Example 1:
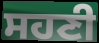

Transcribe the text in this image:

ਸਹਣੀ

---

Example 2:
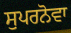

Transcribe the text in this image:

ਸੁਪਰਨੋਵਾ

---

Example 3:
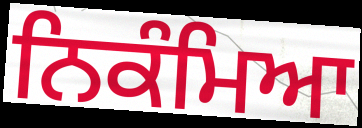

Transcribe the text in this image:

ਨਿਕੰਮਿਆ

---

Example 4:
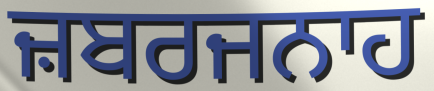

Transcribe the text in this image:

ਜ਼ਬਰਜਨਾਹ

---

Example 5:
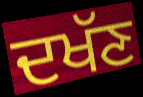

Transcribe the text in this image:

ਦਖੱਣ